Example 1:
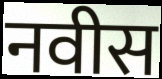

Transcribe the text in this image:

नवीस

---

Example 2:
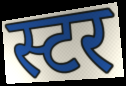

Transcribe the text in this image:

स्टर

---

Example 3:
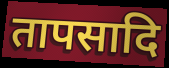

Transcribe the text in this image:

तापसादि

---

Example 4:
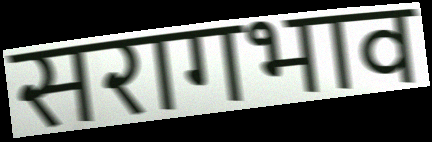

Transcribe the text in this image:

सरागभाव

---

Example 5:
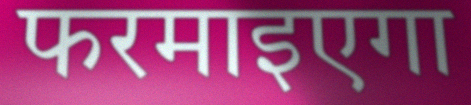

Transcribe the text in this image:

फरमाइएगा